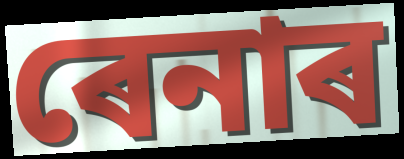
ৰেনাৰ